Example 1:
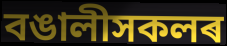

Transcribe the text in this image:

বঙালীসকলৰ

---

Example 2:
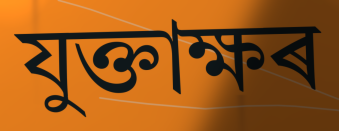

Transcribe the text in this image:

যুক্তাক্ষৰ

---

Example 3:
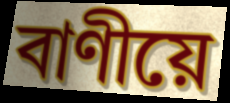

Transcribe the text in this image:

বাণীয়ে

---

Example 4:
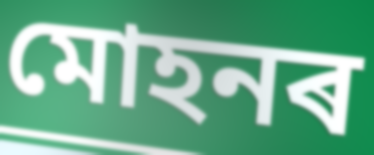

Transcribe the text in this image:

মোহনৰ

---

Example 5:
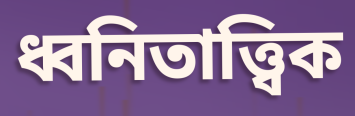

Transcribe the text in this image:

ধ্বনিতাত্ত্বিক